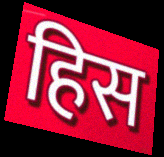
हिस